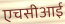
एचसीआई